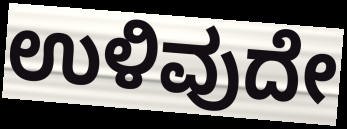
ಉಳಿವುದೇ